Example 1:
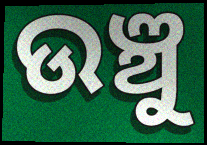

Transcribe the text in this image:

ଉଞ୍ଚୁ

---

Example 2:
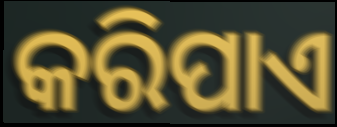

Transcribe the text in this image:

କରିପାଏ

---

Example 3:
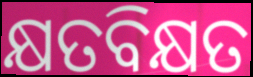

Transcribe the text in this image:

କ୍ଷତବିକ୍ଷତ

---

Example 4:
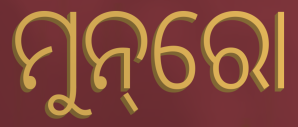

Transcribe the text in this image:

ମୁନ୍‌ରୋ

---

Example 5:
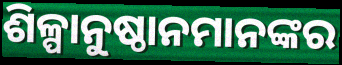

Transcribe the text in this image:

ଶିଳ୍ପାନୁଷ୍ଠାନମାନଙ୍କର